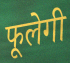
फूलेगी